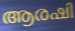
ആരഷി